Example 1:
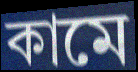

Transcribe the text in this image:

কামে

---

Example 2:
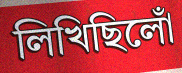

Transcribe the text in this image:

লিখিছিলোঁ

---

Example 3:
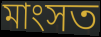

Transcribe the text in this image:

মাংসত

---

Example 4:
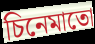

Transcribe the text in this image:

চিনেমাতো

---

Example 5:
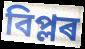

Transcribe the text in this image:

বিপ্লৰ